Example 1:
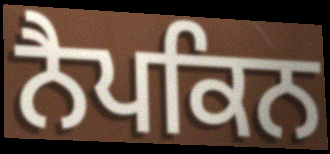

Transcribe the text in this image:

ਨੈਪਕਿਨ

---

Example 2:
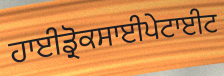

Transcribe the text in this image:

ਹਾਈਡ੍ਰੋਕਸਾਈਪੇਟਾਈਟ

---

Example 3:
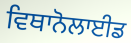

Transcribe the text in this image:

ਵਿਥਾਨੋਲਾਈਡ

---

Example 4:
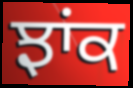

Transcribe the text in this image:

ਝਾਂਕ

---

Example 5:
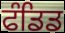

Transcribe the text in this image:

ਫੰਡਿਡ